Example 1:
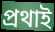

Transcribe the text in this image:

প্রথাই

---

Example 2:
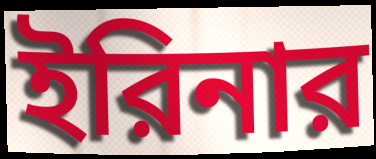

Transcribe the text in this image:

ইরিনার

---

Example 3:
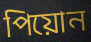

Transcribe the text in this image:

পিয়োন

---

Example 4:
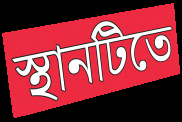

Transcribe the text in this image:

স্থানটিতে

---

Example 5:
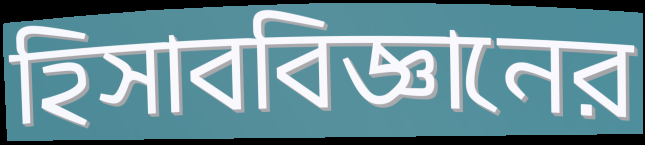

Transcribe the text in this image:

হিসাববিজ্ঞানের